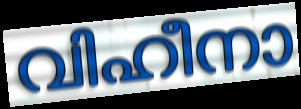
വിഹീനാ